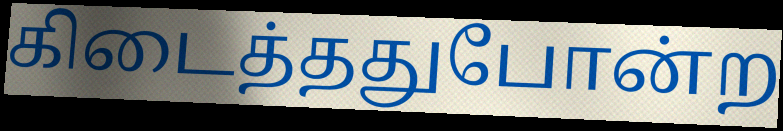
கிடைத்ததுபோன்ற